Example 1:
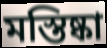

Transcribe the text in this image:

মস্তিষ্কা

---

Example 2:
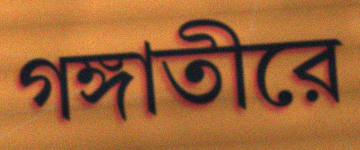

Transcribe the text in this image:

গঙ্গাতীরে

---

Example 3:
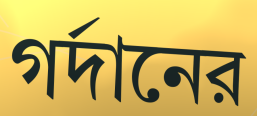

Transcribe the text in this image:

গর্দানের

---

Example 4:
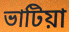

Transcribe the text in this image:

ভাটিয়া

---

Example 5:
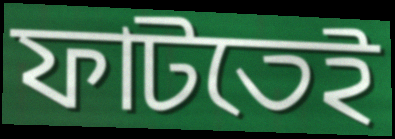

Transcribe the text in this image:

ফাটতেই